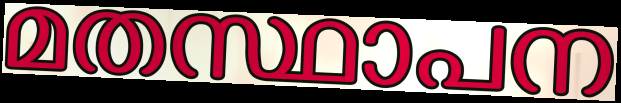
മതസ്ഥാപന